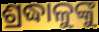
ଶ୍ରଦ୍ଧାଳୁଙ୍କୁ